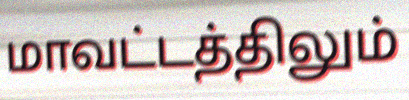
மாவட்டத்திலும்